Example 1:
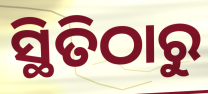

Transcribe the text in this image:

ସ୍ଥିତିଠାରୁ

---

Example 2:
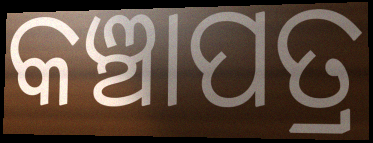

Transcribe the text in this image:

କଞ୍ଚାପତ୍ର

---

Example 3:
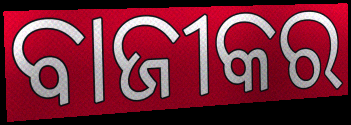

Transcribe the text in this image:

ବାଜୀକର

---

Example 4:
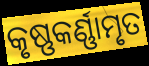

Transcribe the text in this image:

କୃଷ୍ଣକର୍ଣ୍ଣାମୃତ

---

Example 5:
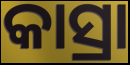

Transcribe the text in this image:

କାସ୍ରା